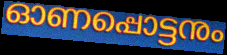
ഓണപ്പൊട്ടനും